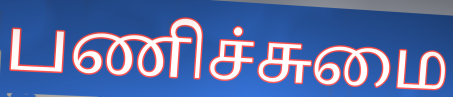
பணிச்சுமை